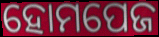
ହୋମପେଜ